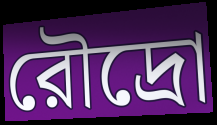
রৌদ্রো